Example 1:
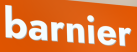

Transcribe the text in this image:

barnier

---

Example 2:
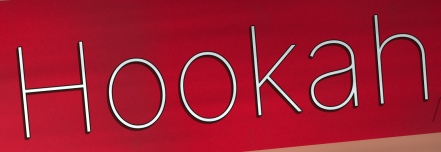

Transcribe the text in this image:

Hookah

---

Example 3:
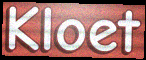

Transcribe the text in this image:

Kloet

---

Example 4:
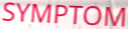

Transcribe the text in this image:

SYMPTOM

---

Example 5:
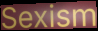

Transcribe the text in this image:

Sexism